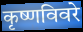
कृष्णविवरे